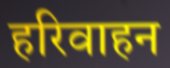
हरिवाहन